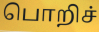
பொறிச்